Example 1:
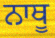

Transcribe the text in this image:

ਨਾਥੂ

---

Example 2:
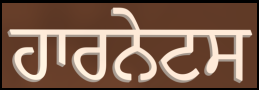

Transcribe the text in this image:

ਹਾਰਨੇਟਸ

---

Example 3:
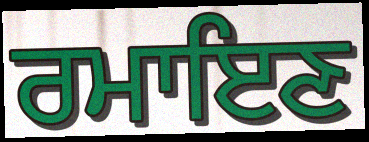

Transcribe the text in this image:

ਰਮਾਇਣ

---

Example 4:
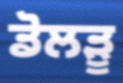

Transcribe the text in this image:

ਡੋਲੜੂ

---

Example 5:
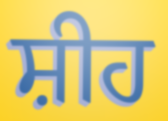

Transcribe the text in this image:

ਸ਼ੀਹ